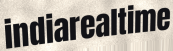
indiarealtime